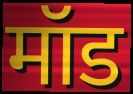
मॉड